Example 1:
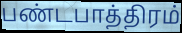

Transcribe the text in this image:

பண்டபாத்திரம்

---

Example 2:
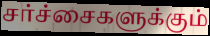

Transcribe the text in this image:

சர்ச்சைகளுக்கும்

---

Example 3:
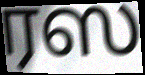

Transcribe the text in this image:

ரஸ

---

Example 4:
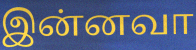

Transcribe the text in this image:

இன்னவா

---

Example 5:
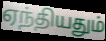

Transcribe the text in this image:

ஏந்தியதும்